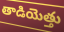
తాడియెత్తు